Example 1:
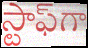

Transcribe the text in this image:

స్టాఫ్‌గా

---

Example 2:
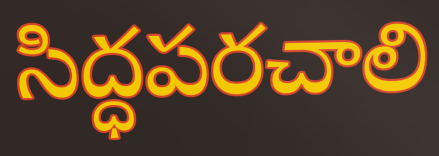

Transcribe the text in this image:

సిద్ధపరచాలి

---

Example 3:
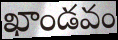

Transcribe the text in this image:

ఖాండవం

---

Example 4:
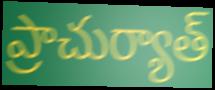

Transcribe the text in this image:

ప్రాచుర్యాత్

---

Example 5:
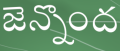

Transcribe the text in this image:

జెన్నొంద